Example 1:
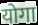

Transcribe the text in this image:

योगा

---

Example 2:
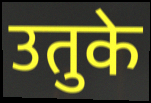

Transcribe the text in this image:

उतुके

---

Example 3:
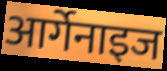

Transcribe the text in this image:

आर्गेनाइज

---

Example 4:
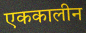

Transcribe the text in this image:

एककालीन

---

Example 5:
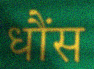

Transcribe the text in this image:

धौंस